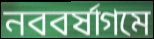
নববর্ষাগমে